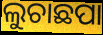
ଲୁଚାଛପା